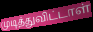
முடித்துவிட்டாள்